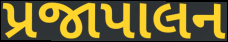
પ્રજાપાલન